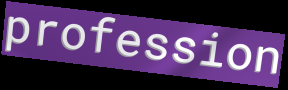
profession